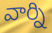
వార్ని